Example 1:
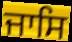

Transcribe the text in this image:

ਜਾਸਿ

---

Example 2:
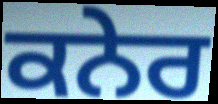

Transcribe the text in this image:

ਕਨੇਰ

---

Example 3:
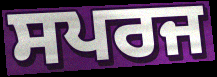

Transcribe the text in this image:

ਸਪਰਜ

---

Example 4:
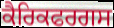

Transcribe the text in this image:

ਕੈਰਿਕਫਰਗਸ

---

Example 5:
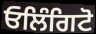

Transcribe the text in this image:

ਓਲਿੰਗਿਟੋ